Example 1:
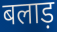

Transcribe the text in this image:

बलाड़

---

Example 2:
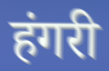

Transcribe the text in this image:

हंगरी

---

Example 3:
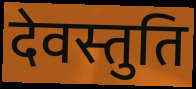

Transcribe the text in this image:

देवस्तुति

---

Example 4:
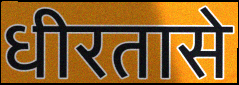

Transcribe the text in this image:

धीरतासे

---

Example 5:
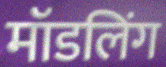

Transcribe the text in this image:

मॉडलिंग